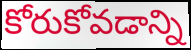
కోరుకోవడాన్ని